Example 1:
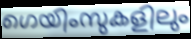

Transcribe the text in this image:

ഗെയിംസുകളിലും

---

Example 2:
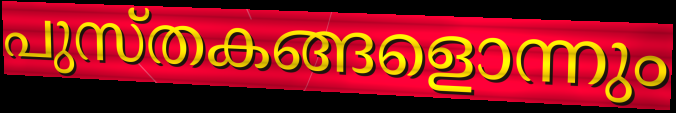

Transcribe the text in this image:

പുസ്തകങ്ങളൊന്നും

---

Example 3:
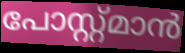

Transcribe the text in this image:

പോസ്റ്റ്മാൻ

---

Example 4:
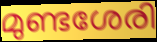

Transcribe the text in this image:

മുണ്ടശേരി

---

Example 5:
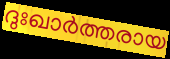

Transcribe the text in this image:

ദുഃഖാർത്തരായ